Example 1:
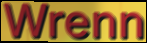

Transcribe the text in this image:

Wrenn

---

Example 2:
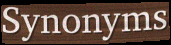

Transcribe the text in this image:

Synonyms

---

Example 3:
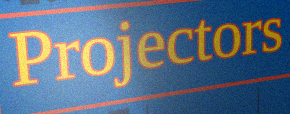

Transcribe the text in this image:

Projectors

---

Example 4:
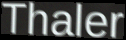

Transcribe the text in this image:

Thaler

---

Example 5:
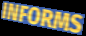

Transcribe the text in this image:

INFORMS